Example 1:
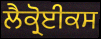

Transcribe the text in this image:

ਲੈਕ੍ਰੋਈਕਸ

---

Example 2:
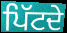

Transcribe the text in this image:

ਪਿੱਟਦੇ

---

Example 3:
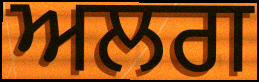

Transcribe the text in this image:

ਅਲਗ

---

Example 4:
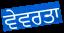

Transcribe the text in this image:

ਵੇਵਰਤਾ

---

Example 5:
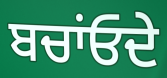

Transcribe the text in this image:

ਬਚਾਂਓਦੇ